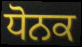
ਧੋਨਕ